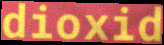
dioxid